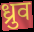
ध्रुव